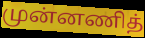
முன்னணித்